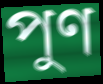
পুণ